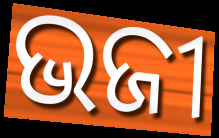
ଭଜୀ